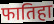
फातिहा